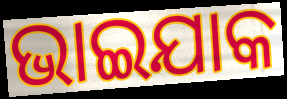
ଭାଇଯାକ